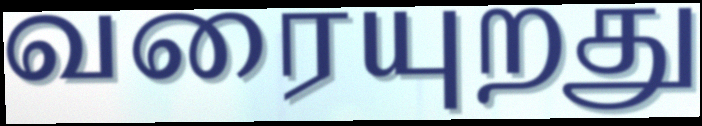
வரையுறது